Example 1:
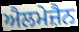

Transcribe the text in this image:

ਐਲਮੇਜ਼ੈਨ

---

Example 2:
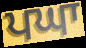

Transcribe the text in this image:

ਪਘਾ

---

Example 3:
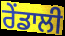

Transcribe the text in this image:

ਰੇਂਡਾਲੀ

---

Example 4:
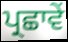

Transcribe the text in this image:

ਪ੍ਰਛਾਵੇਂ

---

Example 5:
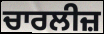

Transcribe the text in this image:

ਚਾਰਲੀਜ਼